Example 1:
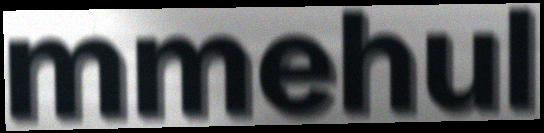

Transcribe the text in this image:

mmehul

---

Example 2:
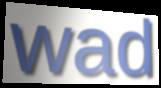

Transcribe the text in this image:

wad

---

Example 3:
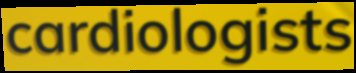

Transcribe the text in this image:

cardiologists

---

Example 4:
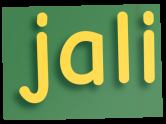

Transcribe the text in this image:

jali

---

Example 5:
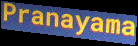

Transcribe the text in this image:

Pranayama